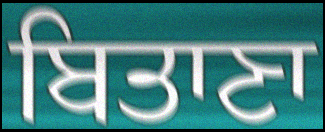
ਬਿਤਾਣਾ